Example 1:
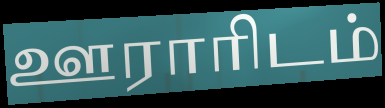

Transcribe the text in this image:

ஊராரிடம்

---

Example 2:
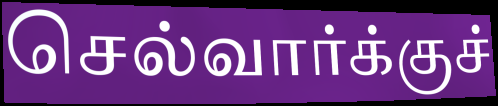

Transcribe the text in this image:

செல்வார்க்குச்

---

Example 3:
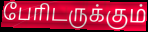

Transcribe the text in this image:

பேரிடருக்கும்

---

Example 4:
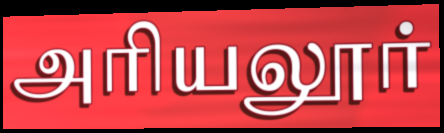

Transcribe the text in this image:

அரியலூர்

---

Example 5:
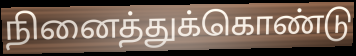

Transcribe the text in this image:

நினைத்துக்கொண்டு